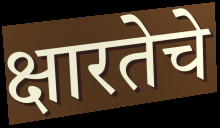
क्षारतेचे